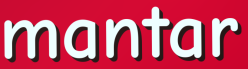
mantar